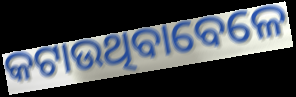
କଟାଉଥିବାବେଳେ